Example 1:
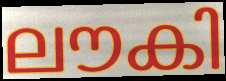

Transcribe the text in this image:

ലൗകി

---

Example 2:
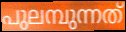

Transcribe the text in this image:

പുലമ്പുന്നത്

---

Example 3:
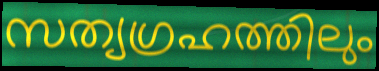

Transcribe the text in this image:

സത്യഗ്രഹത്തിലും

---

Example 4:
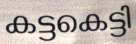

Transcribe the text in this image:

കട്ടകെട്ടി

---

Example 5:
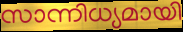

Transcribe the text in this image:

സാന്നിധ്യമായി